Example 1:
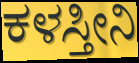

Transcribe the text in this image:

ಕಳಸ್ತೀನಿ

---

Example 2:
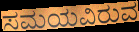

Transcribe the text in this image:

ಸಮಯವಿರುವ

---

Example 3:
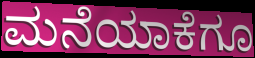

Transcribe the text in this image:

ಮನೆಯಾಕೆಗೂ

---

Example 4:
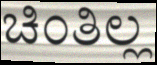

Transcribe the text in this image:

ಚಿಂತಿಲ್ಲ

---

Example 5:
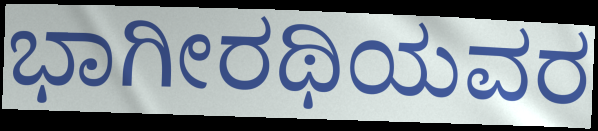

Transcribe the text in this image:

ಭಾಗೀರಥಿಯವರ